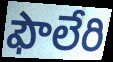
ఫౌలేరి